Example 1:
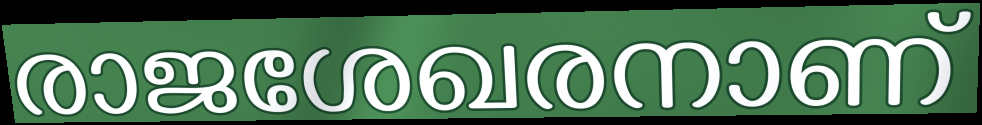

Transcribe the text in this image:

രാജശേഖരനാണ്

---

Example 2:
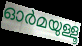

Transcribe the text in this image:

ഓർമയുള്ളൂ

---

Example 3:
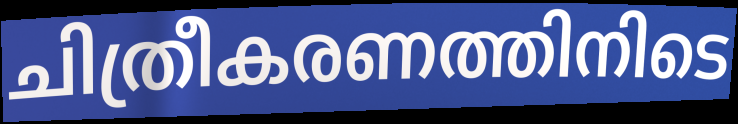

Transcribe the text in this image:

ചിത്രീകരണത്തിനിടെ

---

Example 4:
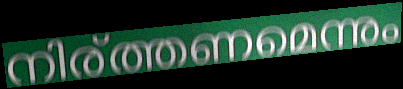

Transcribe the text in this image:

നിര്ത്തണമെന്നും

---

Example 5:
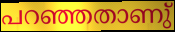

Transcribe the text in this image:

പറഞ്ഞതാണു്